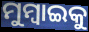
ମୁମ୍ୱାଇକୁ